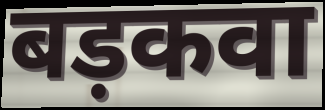
बड़कवा